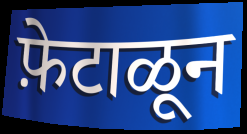
फ़ेटाळून